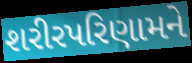
શરીરપરિણામને